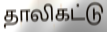
தாலிகட்டு